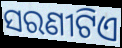
ସରଣୀଟିଏ